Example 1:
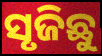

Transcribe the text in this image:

ସୃଜିଛୁ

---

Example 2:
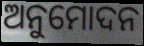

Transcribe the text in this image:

ଅନୁମୋଦନ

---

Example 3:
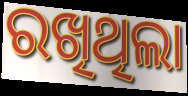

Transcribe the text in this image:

ରଖିଥିଲା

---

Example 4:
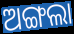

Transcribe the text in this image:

ଅଙ୍ଗଲା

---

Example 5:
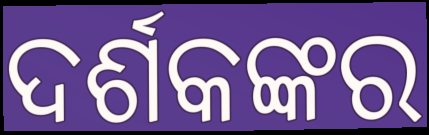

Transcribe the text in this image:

ଦର୍ଶକଙ୍କର